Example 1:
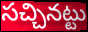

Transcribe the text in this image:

సచ్చినట్టు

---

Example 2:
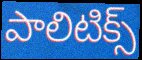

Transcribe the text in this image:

పాలిటిక్స్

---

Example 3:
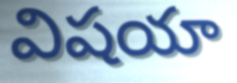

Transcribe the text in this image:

విషయా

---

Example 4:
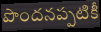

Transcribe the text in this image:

పొందనప్పటికీ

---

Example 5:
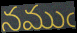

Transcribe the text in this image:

నముఁ